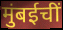
मुंबईचीं